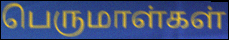
பெருமாள்கள்